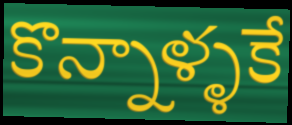
కొన్నాళ్ళకే